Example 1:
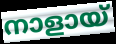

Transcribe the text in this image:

നാളായ്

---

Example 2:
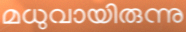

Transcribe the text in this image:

മധുവായിരുന്നു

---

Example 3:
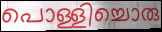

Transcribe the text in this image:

പൊള്ളിച്ചൊരു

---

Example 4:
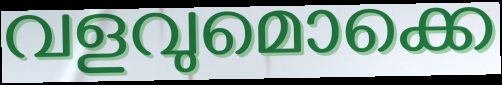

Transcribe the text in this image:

വളവുമൊക്കെ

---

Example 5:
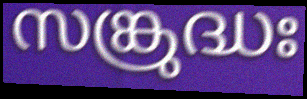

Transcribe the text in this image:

സങ്ക്രുദ്ധഃ